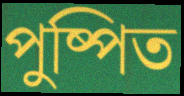
পুষ্পিত